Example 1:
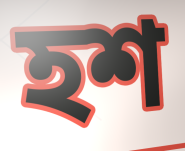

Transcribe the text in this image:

হশ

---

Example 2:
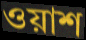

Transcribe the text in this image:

ওয়াশ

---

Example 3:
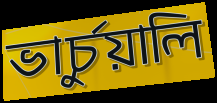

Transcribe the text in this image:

ভার্চুয়ালি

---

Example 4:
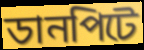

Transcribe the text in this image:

ডানপিটে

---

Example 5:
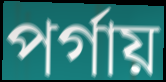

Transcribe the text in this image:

পর্গায়